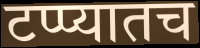
टप्प्यातच